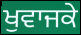
ਖੁਵਾਜਕੇ